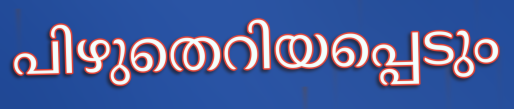
പിഴുതെറിയപ്പെടും